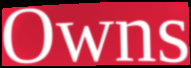
Owns